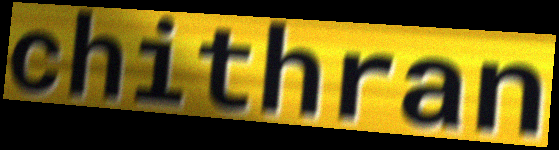
chithran